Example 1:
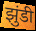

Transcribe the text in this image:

झुंडी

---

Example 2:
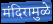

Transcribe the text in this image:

मंदिरामुळे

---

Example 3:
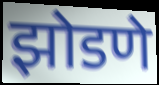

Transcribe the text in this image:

झोडणे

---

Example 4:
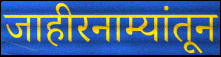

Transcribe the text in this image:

जाहीरनाम्यांतून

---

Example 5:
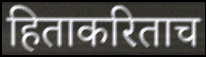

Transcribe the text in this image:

हिताकरिताच